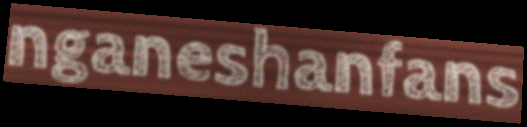
nganeshanfans